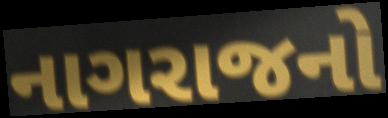
નાગરાજનો